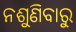
ନଶୁଣିବାରୁ